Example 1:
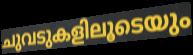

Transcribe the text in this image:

ചുവടുകളിലൂടെയും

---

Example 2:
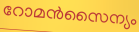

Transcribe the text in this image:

റോമൻസൈന്യം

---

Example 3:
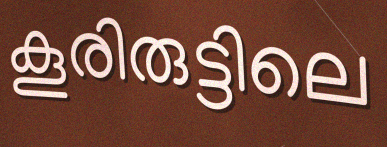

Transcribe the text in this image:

കൂരിരുട്ടിലെ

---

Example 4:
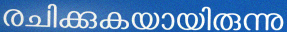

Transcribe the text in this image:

രചിക്കുകയായിരുന്നു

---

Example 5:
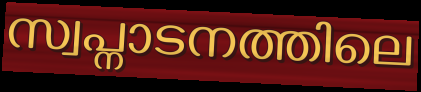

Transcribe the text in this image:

സ്വപ്നാടനത്തിലെ